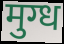
मुग्ध